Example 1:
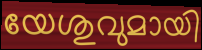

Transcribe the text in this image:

യേശുവുമായി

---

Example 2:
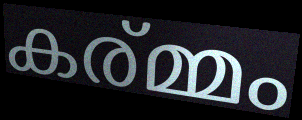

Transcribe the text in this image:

കര്മ്മം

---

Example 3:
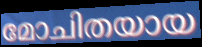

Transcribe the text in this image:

മോചിതയായ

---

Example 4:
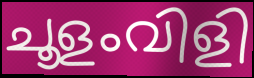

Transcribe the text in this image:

ചൂളംവിളി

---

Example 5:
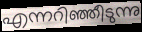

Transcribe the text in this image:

എന്നറിഞ്ഞീടുന്നു